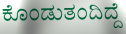
ಕೊಂಡುತಂದಿದ್ದೆ